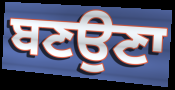
ਬਣਉਣਾ